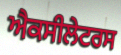
ਐਕਸੀਲੇਟਰਸ